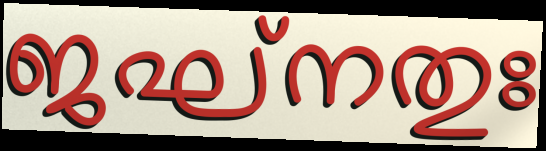
ജഘ്നതുഃ